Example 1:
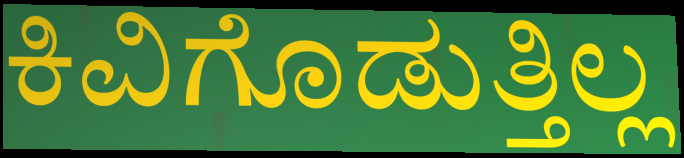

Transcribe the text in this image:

ಕಿವಿಗೊಡುತ್ತಿಲ್ಲ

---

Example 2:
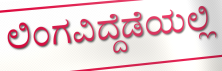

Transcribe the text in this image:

ಲಿಂಗವಿದ್ದೆಡೆಯಲ್ಲಿ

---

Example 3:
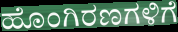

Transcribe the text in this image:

ಹೊಂಗಿರಣಗಳಿಗೆ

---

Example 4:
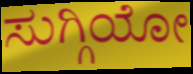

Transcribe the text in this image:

ಸುಗ್ಗಿಯೋ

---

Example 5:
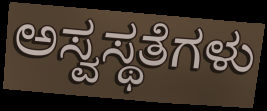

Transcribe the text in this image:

ಅಸ್ವಸ್ಥತೆಗಳು